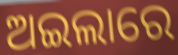
ଅଇଲାରେ